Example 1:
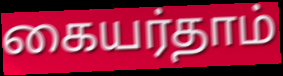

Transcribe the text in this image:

கையர்தாம்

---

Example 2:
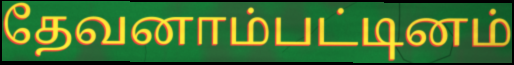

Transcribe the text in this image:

தேவனாம்பட்டினம்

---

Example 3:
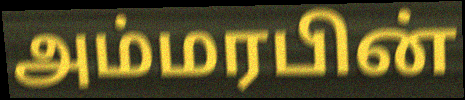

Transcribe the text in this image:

அம்மரபின்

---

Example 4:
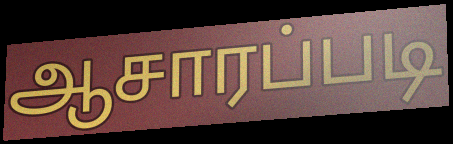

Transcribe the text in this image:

ஆசாரப்படி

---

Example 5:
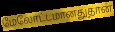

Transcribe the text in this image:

மேலோட்டமானதுதான்